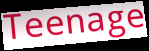
Teenage